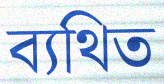
ব্যথিত